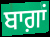
ਬਾਗ਼ਾਂ